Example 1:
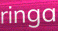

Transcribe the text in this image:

ringa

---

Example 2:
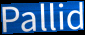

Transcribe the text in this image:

Pallid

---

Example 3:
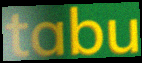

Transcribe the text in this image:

tabu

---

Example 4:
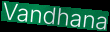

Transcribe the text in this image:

Vandhana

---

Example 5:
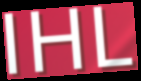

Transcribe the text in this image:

IHL